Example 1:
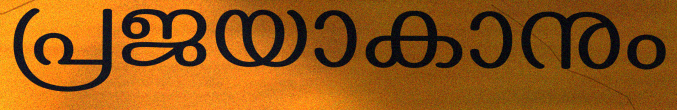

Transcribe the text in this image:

പ്രജയാകാനും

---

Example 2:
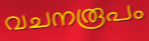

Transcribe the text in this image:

വചനരൂപം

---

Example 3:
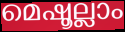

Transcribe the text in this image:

മെഷൂല്ലാം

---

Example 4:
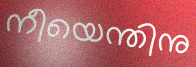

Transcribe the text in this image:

നീയെന്തിനു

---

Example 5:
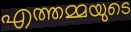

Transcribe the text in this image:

എത്തമ്മയുടെ